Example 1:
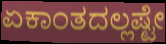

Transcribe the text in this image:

ಏಕಾಂತದಲ್ಲಷ್ಟೇ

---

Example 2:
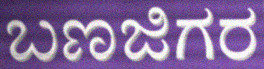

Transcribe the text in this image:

ಬಣಜಿಗರ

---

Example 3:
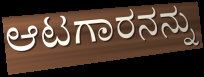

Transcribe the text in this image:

ಆಟಗಾರನನ್ನು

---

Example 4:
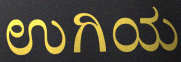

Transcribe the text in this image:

ಉಗಿಯ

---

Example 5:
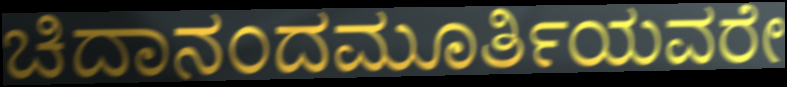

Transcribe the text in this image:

ಚಿದಾನಂದಮೂರ್ತಿಯವರೇ